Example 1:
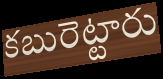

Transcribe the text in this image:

కబురెట్టారు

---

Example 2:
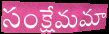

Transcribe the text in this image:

సంక్షేమమా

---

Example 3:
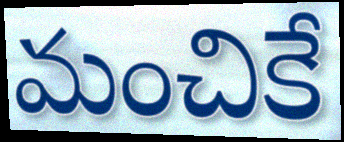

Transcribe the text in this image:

మంచికే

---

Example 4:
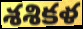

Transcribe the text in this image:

శశికళ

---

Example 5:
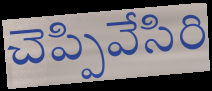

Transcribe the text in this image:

చెప్పివేసిరి